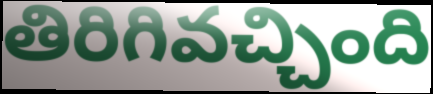
తిరిగివచ్చింది